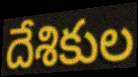
దేశికుల